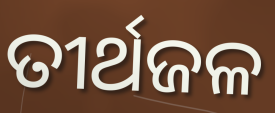
ତୀର୍ଥଜଳ